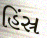
હિંસ્ર